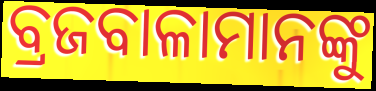
ବ୍ରଜବାଳାମାନଙ୍କୁ